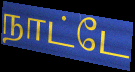
நாட்டே